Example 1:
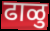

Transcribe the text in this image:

ढाळु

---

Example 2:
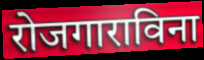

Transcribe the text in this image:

रोजगाराविना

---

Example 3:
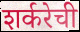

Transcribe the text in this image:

शर्करेची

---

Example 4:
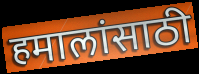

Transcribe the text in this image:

हमालांसाठी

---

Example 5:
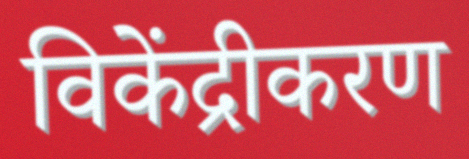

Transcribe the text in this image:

विकेंद्रीकरण